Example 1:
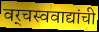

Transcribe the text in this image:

वर्चस्ववाद्यांची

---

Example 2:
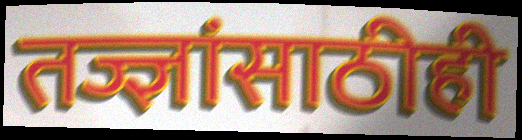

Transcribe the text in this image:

तज्ज्ञांसाठीही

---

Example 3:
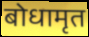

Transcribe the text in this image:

बोधामृत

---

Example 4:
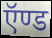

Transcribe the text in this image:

ऍण्ड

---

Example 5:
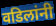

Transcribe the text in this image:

वडिलांनी